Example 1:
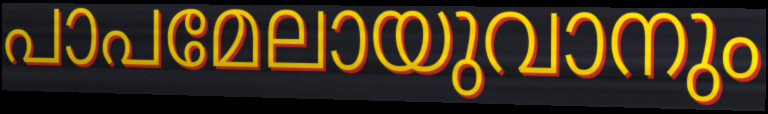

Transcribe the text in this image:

പാപമേലായുവാനും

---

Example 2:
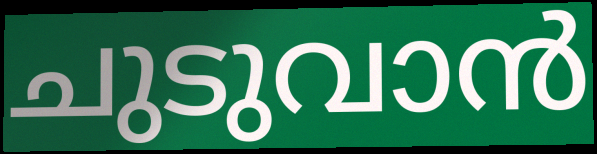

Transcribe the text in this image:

ചുടുവാൻ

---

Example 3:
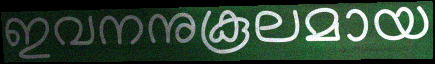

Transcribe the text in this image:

ഇവനനുകൂലമായ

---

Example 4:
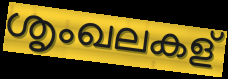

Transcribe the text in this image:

ശൃംഖലകള്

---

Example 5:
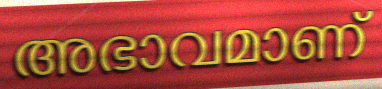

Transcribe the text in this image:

അഭാവമാണ്